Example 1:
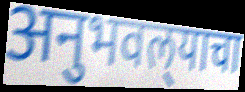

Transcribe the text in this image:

अनुभवल्याचा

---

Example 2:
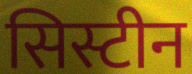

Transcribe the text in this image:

सिस्टीन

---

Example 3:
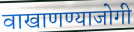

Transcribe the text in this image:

वाखाणण्याजोगी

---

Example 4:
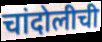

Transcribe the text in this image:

चांदोलीची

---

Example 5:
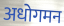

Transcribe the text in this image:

अधोगमन